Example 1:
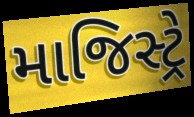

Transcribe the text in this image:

માજિસ્ટ્રે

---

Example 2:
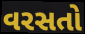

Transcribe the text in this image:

વરસતો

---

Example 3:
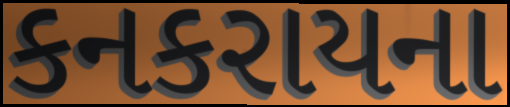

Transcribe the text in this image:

કનકરાયના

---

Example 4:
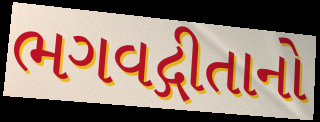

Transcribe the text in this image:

ભગવદ્ગીતાનો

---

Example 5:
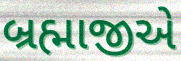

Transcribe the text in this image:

બ્રહ્માજીએ